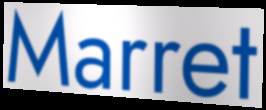
Marret